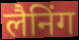
लैनिंग